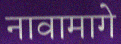
नावामागे